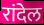
रांदेल